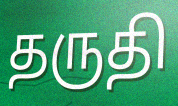
தருதி